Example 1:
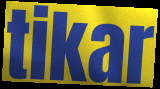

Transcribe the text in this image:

tikar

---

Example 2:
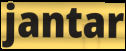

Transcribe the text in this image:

jantar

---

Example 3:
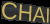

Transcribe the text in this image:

CHAI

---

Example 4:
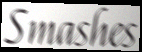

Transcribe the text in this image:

Smashes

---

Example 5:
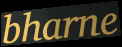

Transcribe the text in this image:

bharne